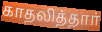
காதலித்தார்